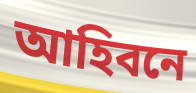
আহিবনে